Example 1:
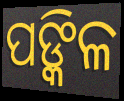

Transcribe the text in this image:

ପଙ୍କିଳ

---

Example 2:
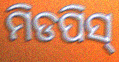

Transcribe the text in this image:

ମିଡପିସ୍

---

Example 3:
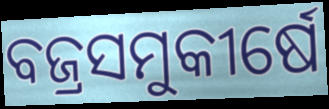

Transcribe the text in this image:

ବଜ୍ରସମୁକୀର୍ଷେ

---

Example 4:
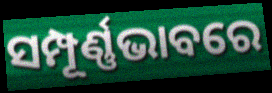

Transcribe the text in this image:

ସମ୍ପୂର୍ଣ୍ଣଭାବରେ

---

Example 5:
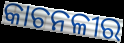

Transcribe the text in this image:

କାଚନଳୀର